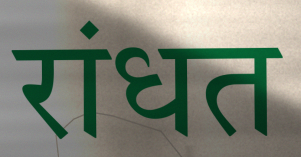
रांधत